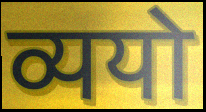
व्ययो